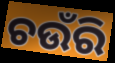
ଚଉଁରି